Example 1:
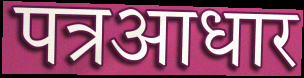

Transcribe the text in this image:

पत्रआधार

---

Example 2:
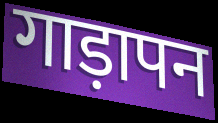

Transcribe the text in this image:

गाड़ापन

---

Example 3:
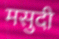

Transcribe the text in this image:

मसुदी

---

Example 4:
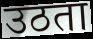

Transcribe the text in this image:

उठता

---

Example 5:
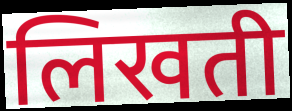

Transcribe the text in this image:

लिखती